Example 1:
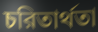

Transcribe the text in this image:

চরিতার্থতা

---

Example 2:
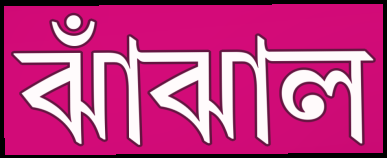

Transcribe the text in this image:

ঝাঁঝাল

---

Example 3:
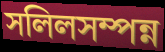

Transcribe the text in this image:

সলিলসম্পন্ন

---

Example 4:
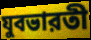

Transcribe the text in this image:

যুবভারতী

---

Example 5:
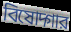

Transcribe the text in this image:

বিষোদ্গার